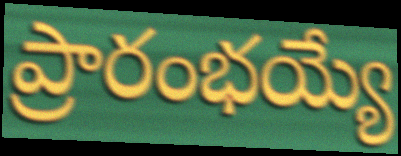
ప్రారంభయ్యే